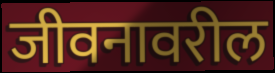
जीवनावरील